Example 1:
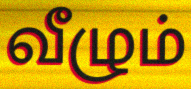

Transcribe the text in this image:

வீழும்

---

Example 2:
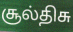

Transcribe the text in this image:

சூல்திசு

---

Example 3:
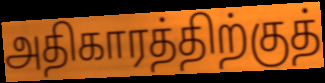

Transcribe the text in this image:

அதிகாரத்திற்குத்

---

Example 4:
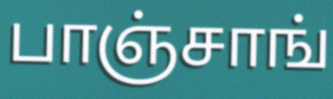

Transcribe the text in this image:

பாஞ்சாங்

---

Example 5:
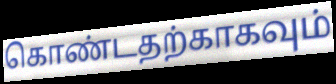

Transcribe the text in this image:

கொண்டதற்காகவும்